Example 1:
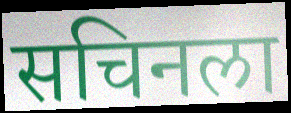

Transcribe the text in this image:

सचिनला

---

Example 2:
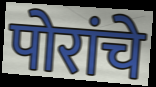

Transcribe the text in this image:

पोरांचे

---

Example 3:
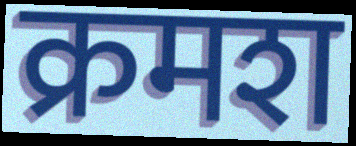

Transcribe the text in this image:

क्रमश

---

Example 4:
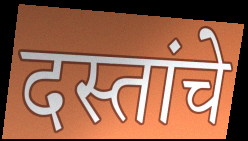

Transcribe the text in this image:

दस्तांचे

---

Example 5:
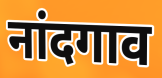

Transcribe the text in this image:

नांदगाव